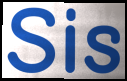
Sis